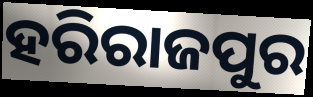
ହରିରାଜପୁର